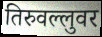
तिरुवल्लुवर